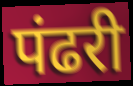
पंढरी